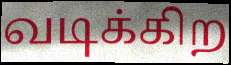
வடிக்கிற